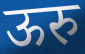
ऊरु